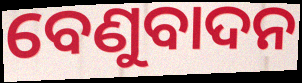
ବେଣୁବାଦନ